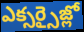
ఎక్సర్సైజ్లో